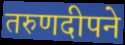
तरुणदीपने